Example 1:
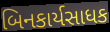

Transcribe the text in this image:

બિનકાર્યસાધક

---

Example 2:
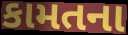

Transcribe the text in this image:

કામતના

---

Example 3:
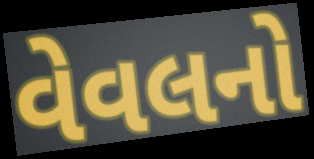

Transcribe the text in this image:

વેવલનો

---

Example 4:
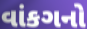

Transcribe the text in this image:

વાંકગનો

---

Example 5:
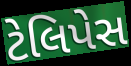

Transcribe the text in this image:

ટેલિપેસ